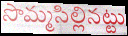
సొమ్మసిల్లినట్టు